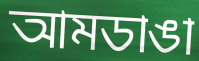
আমডাঙা